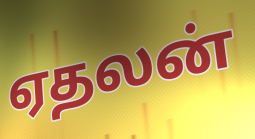
ஏதலன்